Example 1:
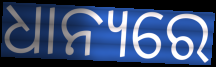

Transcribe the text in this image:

ଧାନ୍ୟରେ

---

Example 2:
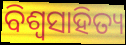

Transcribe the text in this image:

ବିଶ୍ଵସାହିତ୍ୟ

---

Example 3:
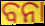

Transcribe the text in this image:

ବନା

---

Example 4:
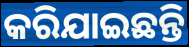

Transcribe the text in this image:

କରିଯାଇଛନ୍ତି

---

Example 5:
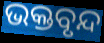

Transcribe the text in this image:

ଭକ୍ତବୃନ୍ଦ